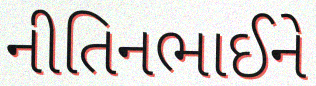
નીતિનભાઈને